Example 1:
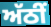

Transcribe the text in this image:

ਅੱਠੀਂ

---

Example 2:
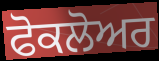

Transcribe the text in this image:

ਫੋਕਲੋਅਰ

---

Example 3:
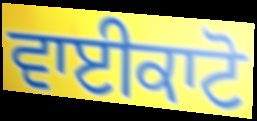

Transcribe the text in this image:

ਵਾਈਕਾਟੋ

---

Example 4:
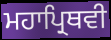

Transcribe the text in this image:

ਮਹਾਪ੍ਰਿਥਵੀ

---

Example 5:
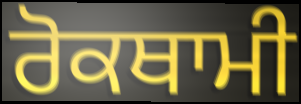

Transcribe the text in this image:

ਰੋਕਥਾਮੀ